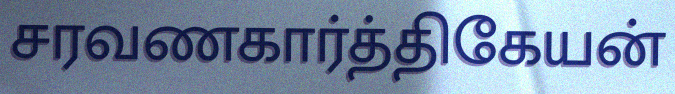
சரவணகார்த்திகேயன்